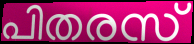
പിതരസ്